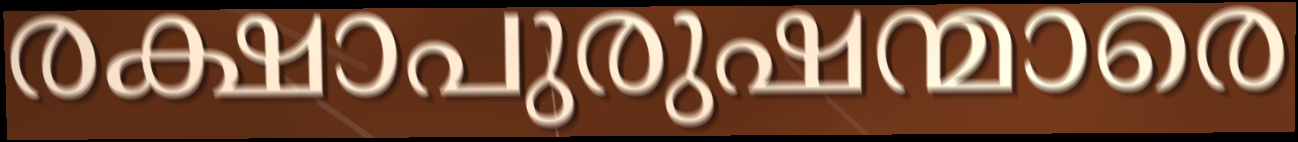
രക്ഷാപുരുഷന്മാരെ